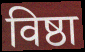
विष्ठा